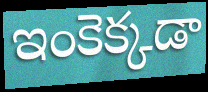
ఇంకెక్కడా